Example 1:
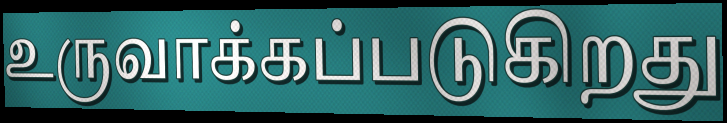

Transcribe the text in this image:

உருவாக்கப்படுகிறது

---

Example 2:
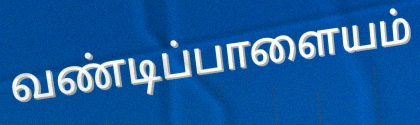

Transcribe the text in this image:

வண்டிப்பாளையம்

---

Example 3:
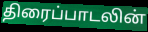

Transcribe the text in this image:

திரைப்பாடலின்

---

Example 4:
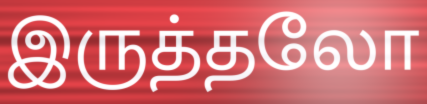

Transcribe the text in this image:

இருத்தலோ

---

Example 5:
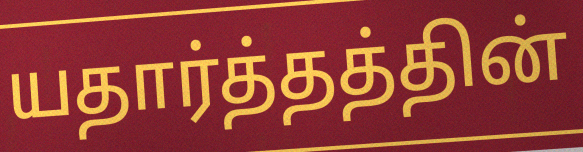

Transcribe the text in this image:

யதார்த்தத்தின்